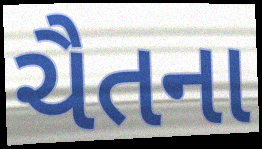
ચૈતના